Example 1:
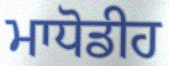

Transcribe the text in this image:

ਮਾਧੋਡੀਹ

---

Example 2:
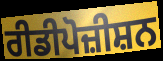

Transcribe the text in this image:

ਰੀਡੀਪੋਜ਼ੀਸ਼ਨ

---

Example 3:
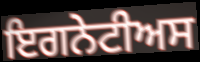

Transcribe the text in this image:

ਇਗਨੇਟੀਅਸ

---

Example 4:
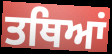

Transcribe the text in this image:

ਤਥਿਆਂ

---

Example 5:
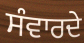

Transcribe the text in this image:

ਸੰਵਾਰਦੇ